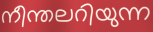
നീന്തലറിയുന്ന